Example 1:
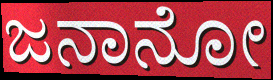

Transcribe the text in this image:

ಜನಾನೋ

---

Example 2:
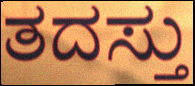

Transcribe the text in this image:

ತದಸ್ತು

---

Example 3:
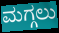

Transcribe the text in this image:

ಮಗ್ಗಲು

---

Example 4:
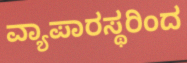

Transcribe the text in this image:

ವ್ಯಾಪಾರಸ್ಥರಿಂದ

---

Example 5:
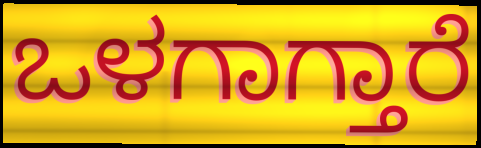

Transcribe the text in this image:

ಒಳಗಾಗ್ತಾರೆ